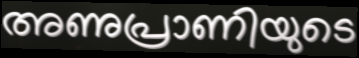
അണുപ്രാണിയുടെ